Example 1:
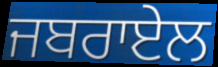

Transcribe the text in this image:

ਜਬਰਾਏਲ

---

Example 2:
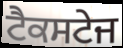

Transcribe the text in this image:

ਟੈਕਸਟੇਜ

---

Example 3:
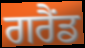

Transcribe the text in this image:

ਗਰੈਂਡ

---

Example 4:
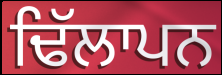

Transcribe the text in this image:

ਢਿੱਲਾਪਨ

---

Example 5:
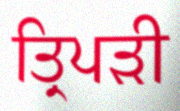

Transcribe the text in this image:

ਤ੍ਰਿਪਡ਼ੀ